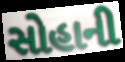
સોહાની